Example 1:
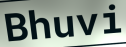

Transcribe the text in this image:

Bhuvi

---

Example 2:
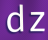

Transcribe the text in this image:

dz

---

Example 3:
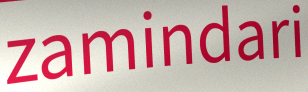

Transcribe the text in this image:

zamindari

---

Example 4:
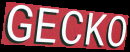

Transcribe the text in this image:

GECKO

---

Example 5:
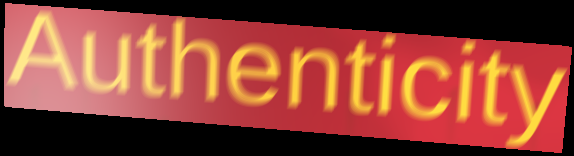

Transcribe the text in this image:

Authenticity